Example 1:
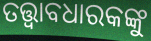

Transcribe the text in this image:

ତତ୍ତ୍ଵାବଧାରକଙ୍କୁ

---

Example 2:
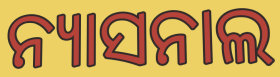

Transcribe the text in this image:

ନ୍ୟାସନାଲ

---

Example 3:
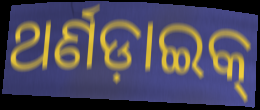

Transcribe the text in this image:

ଥର୍ଣଡ଼ାଇକ୍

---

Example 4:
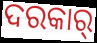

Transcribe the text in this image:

ଦରକାର୍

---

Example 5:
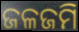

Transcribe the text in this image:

ଜଳଜମି